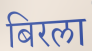
बिरला